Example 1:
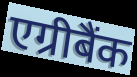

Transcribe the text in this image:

एग्रीबैंक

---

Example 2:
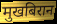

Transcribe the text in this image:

मुखबिरान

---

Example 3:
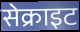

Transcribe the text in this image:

सेक्राइट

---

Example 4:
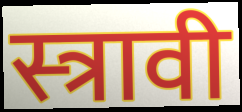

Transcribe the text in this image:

स्त्रावी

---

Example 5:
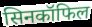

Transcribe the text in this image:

सिनकॉफिल